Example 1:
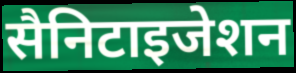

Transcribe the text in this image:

सैनिटाइजेशन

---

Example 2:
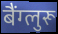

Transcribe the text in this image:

बैंग्लुरू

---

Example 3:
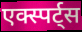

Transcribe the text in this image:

एक्स्पर्ट्स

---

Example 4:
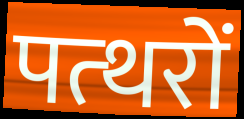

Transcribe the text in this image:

पत्‍थरों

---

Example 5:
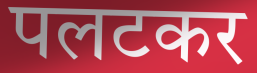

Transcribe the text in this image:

पलटकर